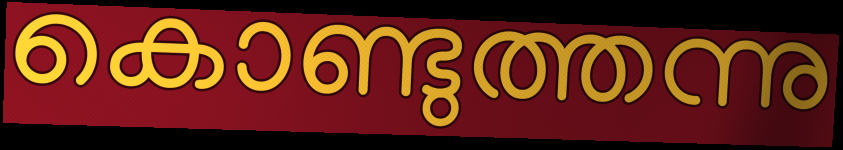
കൊണ്ടുത്തന്നു